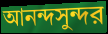
আনন্দসুন্দর